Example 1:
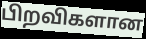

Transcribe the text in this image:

பிறவிகளான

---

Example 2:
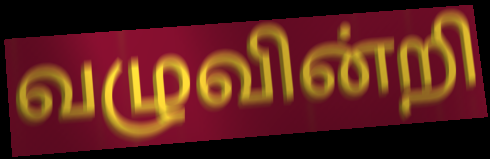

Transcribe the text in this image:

வழுவின்றி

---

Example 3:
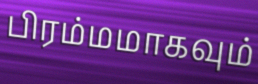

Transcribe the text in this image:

பிரம்மமாகவும்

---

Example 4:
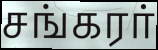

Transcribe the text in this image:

சங்கரர்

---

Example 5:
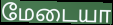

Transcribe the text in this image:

மேடையா